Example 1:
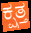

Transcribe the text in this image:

ಕ್ಷತ್ತ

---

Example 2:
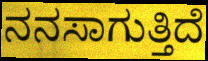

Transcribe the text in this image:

ನನಸಾಗುತ್ತಿದೆ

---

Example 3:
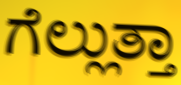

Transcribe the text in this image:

ಗೆಲ್ಲುತ್ತಾ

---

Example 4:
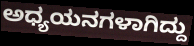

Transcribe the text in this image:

ಅಧ್ಯಯನಗಳಾಗಿದ್ದು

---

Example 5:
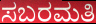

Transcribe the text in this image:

ಸಬರಮತಿ